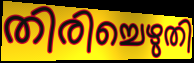
തിരിച്ചെഴുതി